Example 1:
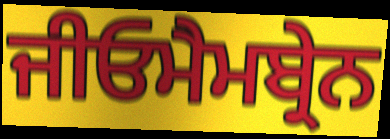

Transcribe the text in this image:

ਜੀਓਮੈਮਬ੍ਰੇਨ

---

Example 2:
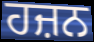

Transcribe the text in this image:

ਹਜ਼ਨ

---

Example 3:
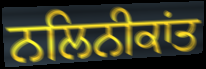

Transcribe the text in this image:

ਨਲਿਨੀਕਾਂਤ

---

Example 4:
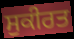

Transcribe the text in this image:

ਸੁਕੀਰਤ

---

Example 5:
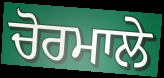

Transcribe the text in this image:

ਚੋਰਮਾਲੇ